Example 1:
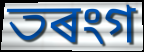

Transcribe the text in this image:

তৰংগ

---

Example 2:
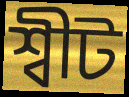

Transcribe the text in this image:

শ্বীট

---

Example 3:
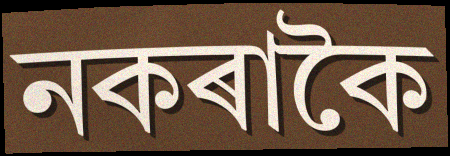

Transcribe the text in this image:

নকৰাকৈ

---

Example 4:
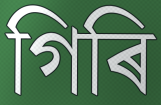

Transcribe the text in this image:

গিৰি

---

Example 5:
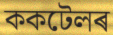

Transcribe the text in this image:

ককটেলৰ